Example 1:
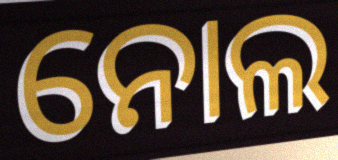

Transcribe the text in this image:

ନୋଲ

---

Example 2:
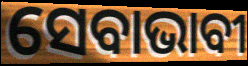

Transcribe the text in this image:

ସେବାଭାବୀ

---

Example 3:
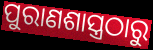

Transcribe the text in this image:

ପୁରାଣଶାସ୍ତ୍ରଠାରୁ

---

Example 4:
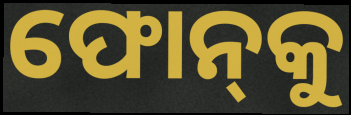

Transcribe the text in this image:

ଫୋନ୍‌କୁ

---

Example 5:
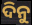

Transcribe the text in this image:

ଦିନୁ